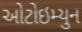
ઓટોઇમ્યુન